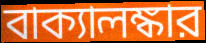
বাক্যালঙ্কার